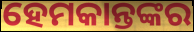
ହେମକାନ୍ତଙ୍କର